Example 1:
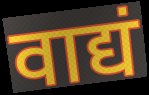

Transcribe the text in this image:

वाद्यं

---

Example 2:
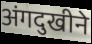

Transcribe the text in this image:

अंगदुखीने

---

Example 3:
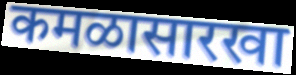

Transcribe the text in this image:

कमळासारखा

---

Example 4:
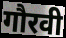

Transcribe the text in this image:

गौरवी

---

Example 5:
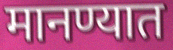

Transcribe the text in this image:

मानण्यात